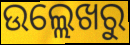
ଉଲ୍ଲେଖରୁ